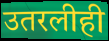
उतरलीही